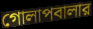
গোলাপবালার